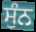
ਸੁੰਨ